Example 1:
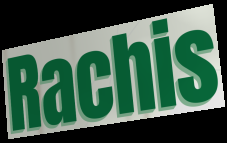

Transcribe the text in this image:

Rachis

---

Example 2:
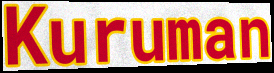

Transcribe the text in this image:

Kuruman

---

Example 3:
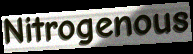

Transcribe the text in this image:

Nitrogenous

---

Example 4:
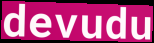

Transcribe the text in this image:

devudu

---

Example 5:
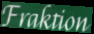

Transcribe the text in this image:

Fraktion